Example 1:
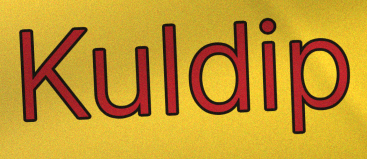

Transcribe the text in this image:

Kuldip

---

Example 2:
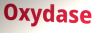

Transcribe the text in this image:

Oxydase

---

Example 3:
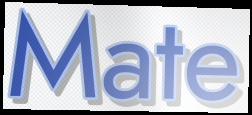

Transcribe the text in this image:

Mate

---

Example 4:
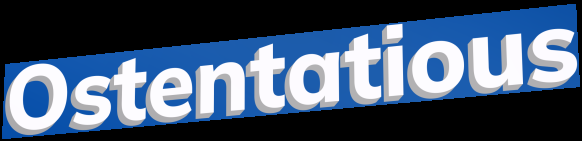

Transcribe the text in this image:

Ostentatious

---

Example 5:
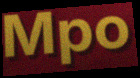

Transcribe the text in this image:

Mpo